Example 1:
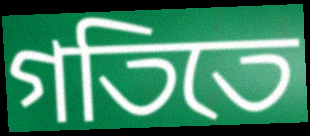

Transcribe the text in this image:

গতিতে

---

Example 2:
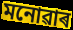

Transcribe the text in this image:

মনোৱাৰ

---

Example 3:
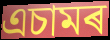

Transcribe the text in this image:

এচামৰ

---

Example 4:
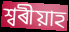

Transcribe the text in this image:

শ্বৰীয়াহ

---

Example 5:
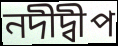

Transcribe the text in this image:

নদীদ্বীপ